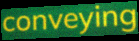
conveying